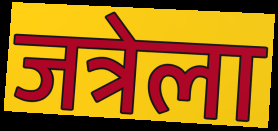
जत्रेला